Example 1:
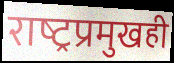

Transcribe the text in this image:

राष्ट्रप्रमुखही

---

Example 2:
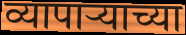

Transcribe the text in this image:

व्यापाऱ्याच्या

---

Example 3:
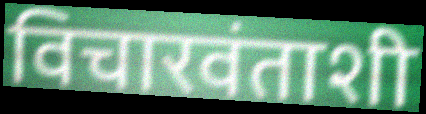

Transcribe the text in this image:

विचारवंताशी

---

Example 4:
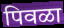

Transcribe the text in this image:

पिवळा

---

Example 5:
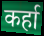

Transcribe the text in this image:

कर्हा